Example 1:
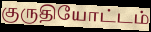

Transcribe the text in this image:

குருதியோட்டம்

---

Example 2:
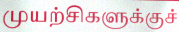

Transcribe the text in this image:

முயற்சிகளுக்குச்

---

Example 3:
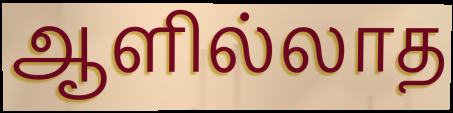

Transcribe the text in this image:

ஆளில்லாத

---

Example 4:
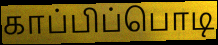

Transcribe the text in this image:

காப்பிப்பொடி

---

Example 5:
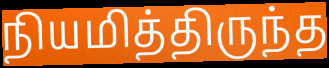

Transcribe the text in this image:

நியமித்திருந்த